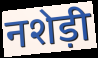
नशेड़ी